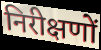
निरीक्षणों